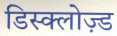
डिस्क्लोज़्ड